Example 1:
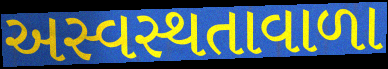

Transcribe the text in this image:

અસ્વસ્થતાવાળા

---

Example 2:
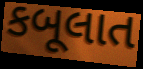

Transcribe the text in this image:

કબૂલાત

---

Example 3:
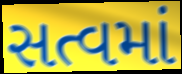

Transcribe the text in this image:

સત્વમાં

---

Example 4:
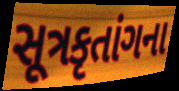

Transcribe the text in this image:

સૂત્રકૃતાંગના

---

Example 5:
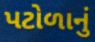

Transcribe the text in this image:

પટોળાનું